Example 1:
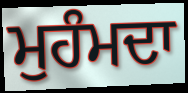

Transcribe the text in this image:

ਮੁਹੰਮਦਾ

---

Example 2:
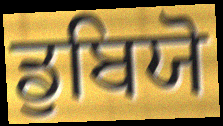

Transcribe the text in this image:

ਡੁਬਿਯੋ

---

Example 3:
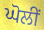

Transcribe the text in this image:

ਘੋਲੀਂ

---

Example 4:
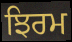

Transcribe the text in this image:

ਝਿਰਮ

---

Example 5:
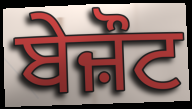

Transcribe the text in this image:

ਬੇਜ਼ੌਟ